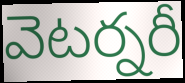
వెటర్నరీ